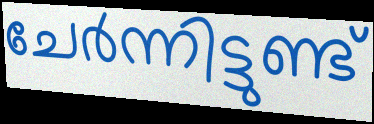
ചേർന്നിട്ടുണ്ട്